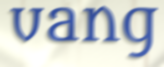
uang